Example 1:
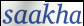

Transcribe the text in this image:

saakha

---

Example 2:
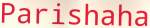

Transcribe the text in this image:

Parishaha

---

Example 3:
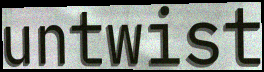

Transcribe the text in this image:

untwist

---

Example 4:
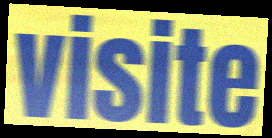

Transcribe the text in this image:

visite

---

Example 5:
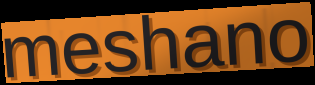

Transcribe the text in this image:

meshano